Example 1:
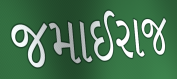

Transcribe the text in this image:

જમાઈરાજ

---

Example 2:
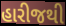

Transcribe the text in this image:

હારીજથી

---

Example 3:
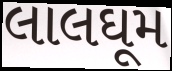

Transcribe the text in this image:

લાલઘૂમ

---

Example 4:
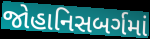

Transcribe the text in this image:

જોહાનિસબર્ગમાં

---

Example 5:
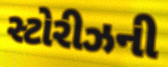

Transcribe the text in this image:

સ્ટોરીઝની